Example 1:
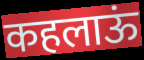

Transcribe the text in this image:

कहलाऊं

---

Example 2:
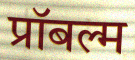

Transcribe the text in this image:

प्रॉबल्म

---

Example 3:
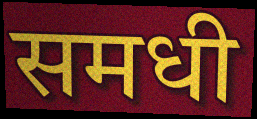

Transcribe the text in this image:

समधी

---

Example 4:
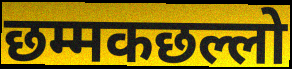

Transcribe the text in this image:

छम्मकछल्लो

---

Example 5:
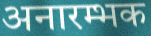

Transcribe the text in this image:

अनारम्भक